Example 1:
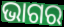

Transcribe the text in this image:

ଭାଗର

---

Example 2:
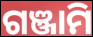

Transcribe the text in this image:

ଗଞ୍ଜାମି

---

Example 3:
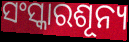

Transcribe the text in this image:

ସଂସ୍କାରଶୂନ୍ୟ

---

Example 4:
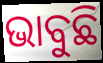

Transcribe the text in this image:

ଭାବୁଛି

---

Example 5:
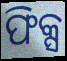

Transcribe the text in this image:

ଫିକ୍ସ